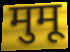
मुमू